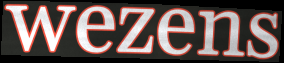
wezens